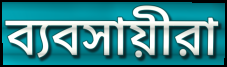
ব্যবসায়ীরা